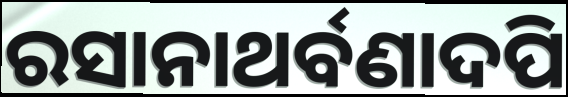
ରସାନାଥର୍ବଣାଦପି